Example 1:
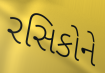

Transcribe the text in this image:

રસિકોને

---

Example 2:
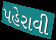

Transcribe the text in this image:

પહેરાવી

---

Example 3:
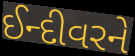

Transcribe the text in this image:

ઈન્દીવરને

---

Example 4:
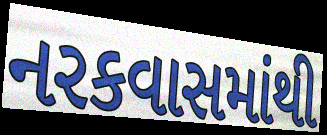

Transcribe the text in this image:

નરકવાસમાંથી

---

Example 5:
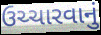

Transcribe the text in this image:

ઉચ્ચારવાનું